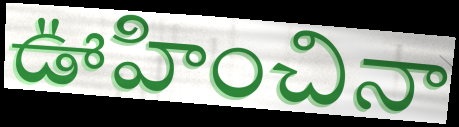
ఊహించినా